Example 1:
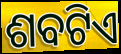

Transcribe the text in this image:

ଶବଟିଏ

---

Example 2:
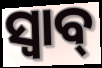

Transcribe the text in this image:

ସ୍ବାବ୍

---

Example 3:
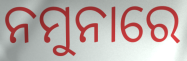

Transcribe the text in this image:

ନମୁନାରେ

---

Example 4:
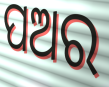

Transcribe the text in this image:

ପଅର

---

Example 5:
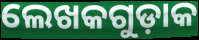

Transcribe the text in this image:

ଲେଖକଗୁଡ଼ାକ